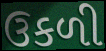
ઉકળી